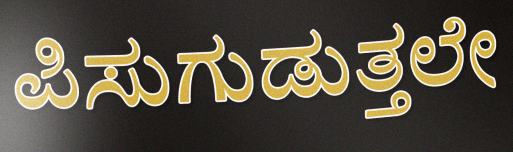
ಪಿಸುಗುಡುತ್ತಲೇ